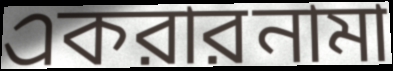
একরারনামা